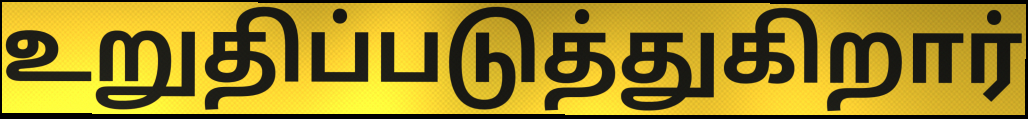
உறுதிப்படுத்துகிறார்